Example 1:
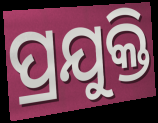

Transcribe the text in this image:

ପ୍ରଯୁକ୍ତି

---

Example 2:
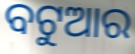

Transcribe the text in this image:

ବଟୁଆର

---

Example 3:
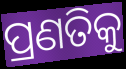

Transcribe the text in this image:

ପ୍ରଣତିକୁ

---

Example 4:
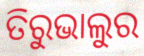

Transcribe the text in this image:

ତିରୁଭାଲୁର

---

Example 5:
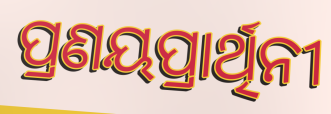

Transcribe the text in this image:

ପ୍ରଣୟପ୍ରାର୍ଥିନୀ